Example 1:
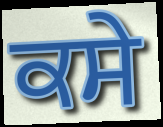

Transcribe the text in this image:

ਕਸੇ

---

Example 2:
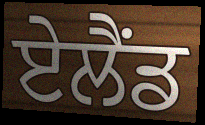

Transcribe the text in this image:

ਏਲੈਂਡ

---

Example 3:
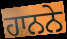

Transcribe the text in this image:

ਹਾਨਨੇ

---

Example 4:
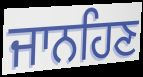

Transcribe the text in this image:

ਜਾਨਹਿਣ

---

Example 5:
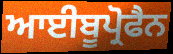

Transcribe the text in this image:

ਆਈਬੂਪ੍ਰੋਫੈਨ